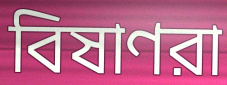
বিষাণরা